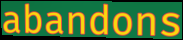
abandons